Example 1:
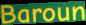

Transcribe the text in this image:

Baroun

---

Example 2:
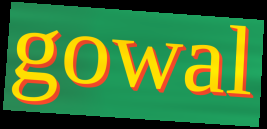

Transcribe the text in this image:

gowal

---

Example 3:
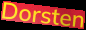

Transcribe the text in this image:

Dorsten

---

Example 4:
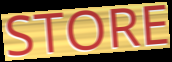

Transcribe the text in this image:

STORE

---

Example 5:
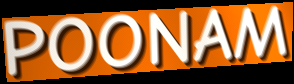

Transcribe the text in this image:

POONAM